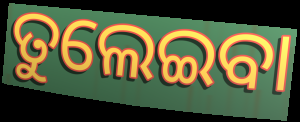
ତୁଲେଇବା